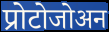
प्रोटोजोअन